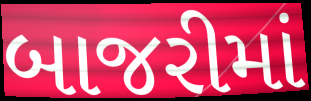
બાજરીમાં